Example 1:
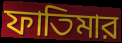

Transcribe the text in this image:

ফাতিমার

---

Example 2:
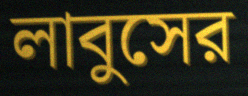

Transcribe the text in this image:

লাবুসের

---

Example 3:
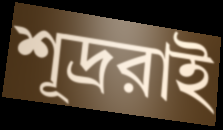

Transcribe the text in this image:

শূদ্ররাই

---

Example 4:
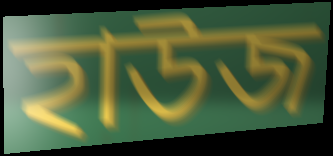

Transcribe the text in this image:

হাউজ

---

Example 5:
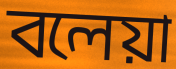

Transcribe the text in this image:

বলেয়া